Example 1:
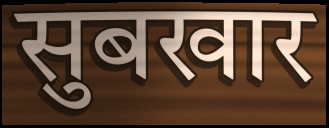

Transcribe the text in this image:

सुबखार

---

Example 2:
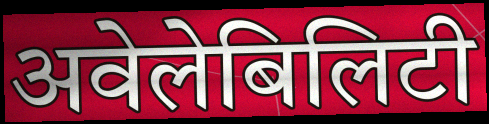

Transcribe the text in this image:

अवेलेबिलिटी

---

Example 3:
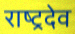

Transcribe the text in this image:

राष्ट्रदेव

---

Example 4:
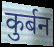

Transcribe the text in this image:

कुर्बन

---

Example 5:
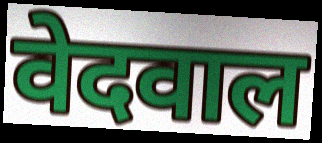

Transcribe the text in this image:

वेदवाल